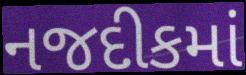
નજદીકમાં